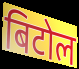
बिटोल